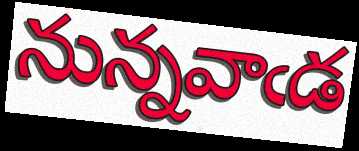
నున్నవాఁడ